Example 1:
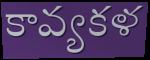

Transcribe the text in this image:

కావ్యకళ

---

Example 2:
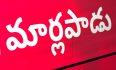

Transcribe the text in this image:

మార్లపాడు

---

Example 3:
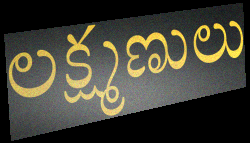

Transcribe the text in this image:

లక్ష్మణులు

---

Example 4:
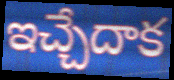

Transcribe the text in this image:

ఇచ్చేదాక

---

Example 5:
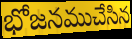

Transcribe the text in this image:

భోజనముచేసిన